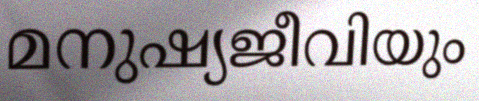
മനുഷ്യജീവിയും